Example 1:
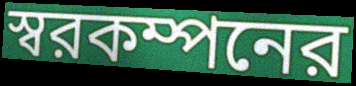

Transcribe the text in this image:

স্বরকম্পনের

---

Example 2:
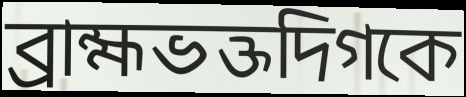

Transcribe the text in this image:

ব্রাহ্মভক্তদিগকে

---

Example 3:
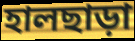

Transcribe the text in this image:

হালছাড়া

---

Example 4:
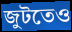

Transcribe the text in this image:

জুটতেও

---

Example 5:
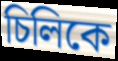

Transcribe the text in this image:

চিলিকে